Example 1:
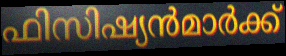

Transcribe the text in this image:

ഫിസിഷ്യൻമാർക്ക്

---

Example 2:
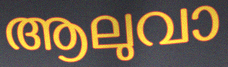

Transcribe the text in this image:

ആലുവാ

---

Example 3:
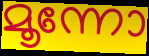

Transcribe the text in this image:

മൂന്നോ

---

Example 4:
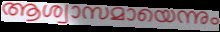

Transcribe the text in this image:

ആശ്വാസമായെന്നും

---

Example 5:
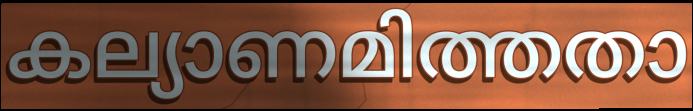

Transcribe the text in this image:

കല്യാണമിത്തതാ